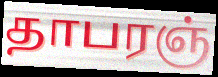
தாபரஞ்